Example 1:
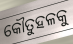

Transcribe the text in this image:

କୌତୁହଳକୁ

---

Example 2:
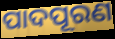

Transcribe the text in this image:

ପାଦପୂରଣ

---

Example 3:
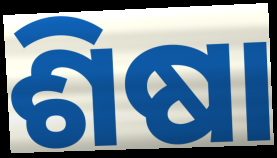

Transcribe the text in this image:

ଶିଷା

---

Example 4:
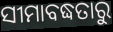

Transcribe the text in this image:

ସୀମାବଦ୍ଧତାରୁ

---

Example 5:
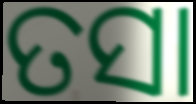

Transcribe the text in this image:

ତସା